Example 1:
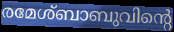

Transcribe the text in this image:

രമേശ്ബാബുവിന്റെ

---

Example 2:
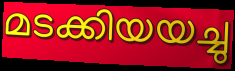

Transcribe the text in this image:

മടക്കിയയച്ചു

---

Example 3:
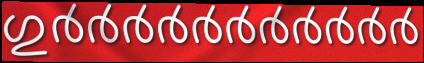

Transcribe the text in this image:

ഗുർർർർർർർർർർർ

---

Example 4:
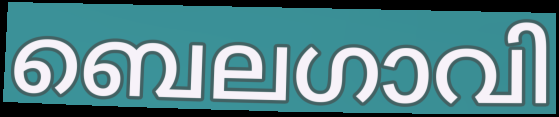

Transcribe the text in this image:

ബെലഗാവി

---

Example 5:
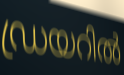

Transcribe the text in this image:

ഡ്രയറിൽ